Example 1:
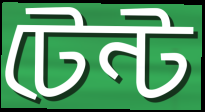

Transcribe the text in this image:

টেন্ট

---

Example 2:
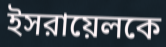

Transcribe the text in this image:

ইসরায়েলকে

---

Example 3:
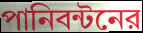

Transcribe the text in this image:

পানিবন্টনের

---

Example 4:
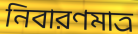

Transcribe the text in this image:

নিবারণমাত্র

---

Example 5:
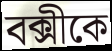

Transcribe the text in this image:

বক্সীকে